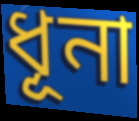
ধূনা